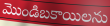
మొండిబకాయిలను